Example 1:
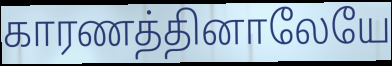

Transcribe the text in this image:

காரணத்தினாலேயே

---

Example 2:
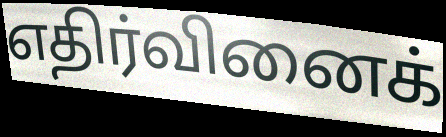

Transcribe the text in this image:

எதிர்வினைக்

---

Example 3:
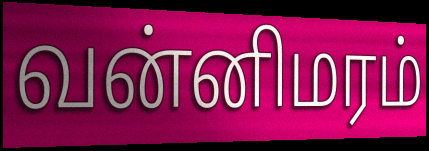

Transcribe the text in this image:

வன்னிமரம்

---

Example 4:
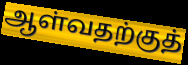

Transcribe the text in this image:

ஆள்வதற்குத்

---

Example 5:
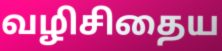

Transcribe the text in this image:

வழிசிதைய